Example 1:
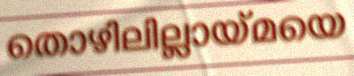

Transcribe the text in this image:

തൊഴിലില്ലായ്മയെ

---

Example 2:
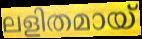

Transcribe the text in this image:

ലളിതമായ്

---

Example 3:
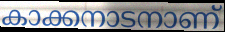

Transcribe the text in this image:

കാക്കനാടനാണ്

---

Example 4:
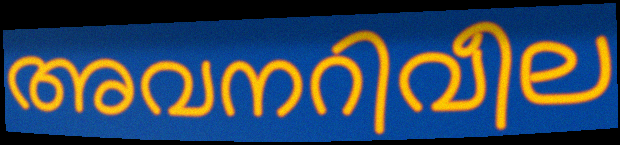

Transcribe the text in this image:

അവനറിവീല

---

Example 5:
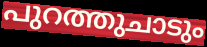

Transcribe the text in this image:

പുറത്തുചാടും